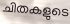
ചിതകളുടെ